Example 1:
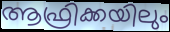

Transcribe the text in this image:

ആഫ്രിക്കയിലും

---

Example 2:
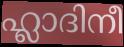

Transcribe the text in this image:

ഹ്ലാദിനീ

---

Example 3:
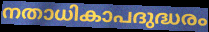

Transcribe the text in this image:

നതാധികാപദുദ്ധരം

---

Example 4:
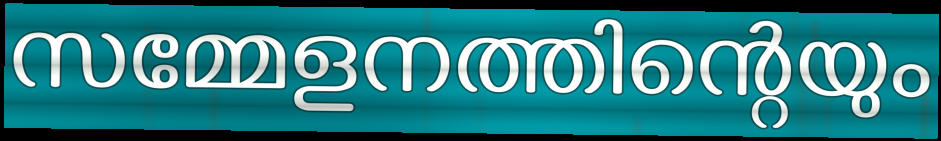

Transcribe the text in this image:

സമ്മേളനത്തിന്റെയും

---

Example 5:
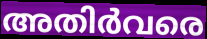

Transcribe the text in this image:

അതിർവരെ